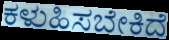
ಕಳುಹಿಸಬೇಕಿದೆ